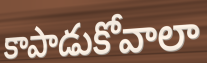
కాపాడుకోవాలా